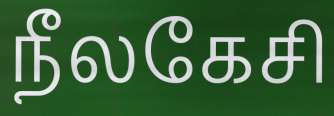
நீலகேசி